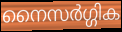
നൈസർഗ്ഗിക